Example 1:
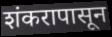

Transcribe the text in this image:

शंकरापासून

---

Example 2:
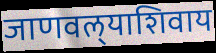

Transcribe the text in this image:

जाणवल्याशिवाय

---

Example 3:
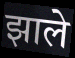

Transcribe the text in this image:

झाले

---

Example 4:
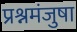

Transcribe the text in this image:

प्रश्नमंजुषा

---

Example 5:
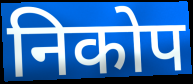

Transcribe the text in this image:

निकोप